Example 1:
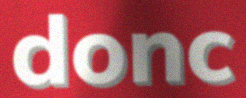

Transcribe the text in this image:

donc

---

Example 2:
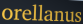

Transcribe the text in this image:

orellanus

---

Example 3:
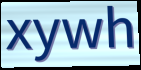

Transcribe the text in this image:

xywh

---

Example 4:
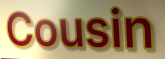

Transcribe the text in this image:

Cousin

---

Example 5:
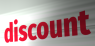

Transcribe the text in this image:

discount